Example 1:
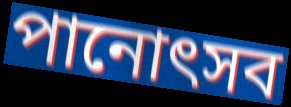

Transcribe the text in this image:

পানোৎসব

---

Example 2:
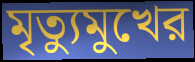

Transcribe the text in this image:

মৃত্যুমুখের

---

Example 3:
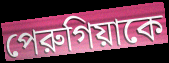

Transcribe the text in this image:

পেরুগিয়াকে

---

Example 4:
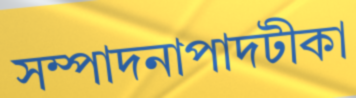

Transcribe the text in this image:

সম্পাদনাপাদটীকা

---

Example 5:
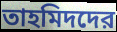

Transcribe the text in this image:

তাহমিদদের